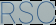
RSC